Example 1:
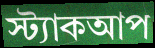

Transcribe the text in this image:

স্ট্যাকআপ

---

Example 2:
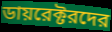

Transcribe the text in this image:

ডায়রেক্টরদের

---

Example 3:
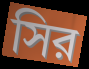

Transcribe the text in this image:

সির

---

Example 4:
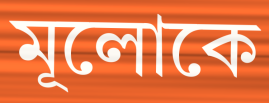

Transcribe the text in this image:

মূলোকে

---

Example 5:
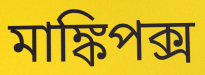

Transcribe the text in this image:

মাঙ্কিপক্স